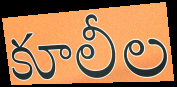
కూలీల